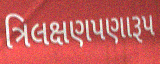
ત્રિલક્ષણપણારૂપ